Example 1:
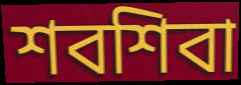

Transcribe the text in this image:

শবশিবা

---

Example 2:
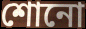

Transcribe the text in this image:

শোনো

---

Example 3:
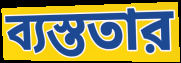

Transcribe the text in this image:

ব্যস্ততার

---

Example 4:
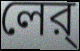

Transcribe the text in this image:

লের্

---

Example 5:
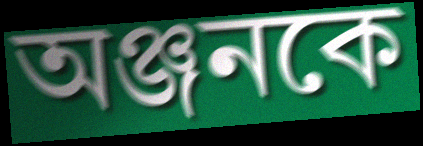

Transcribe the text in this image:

অঞ্জনকে